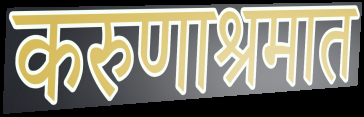
करुणाश्रमात